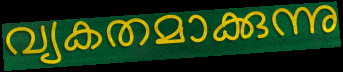
വ്യകതമാക്കുന്നു